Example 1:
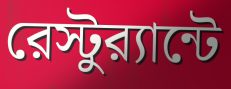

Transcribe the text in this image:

রেস্টুর‍্যান্টে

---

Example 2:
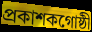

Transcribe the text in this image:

প্রকাশকগোষ্ঠী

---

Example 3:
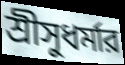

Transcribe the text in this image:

শ্রীসুধর্মার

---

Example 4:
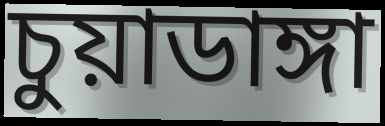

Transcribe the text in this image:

চুয়াডাঙ্গা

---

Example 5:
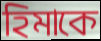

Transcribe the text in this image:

হিমাকে